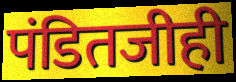
पंडितजीही